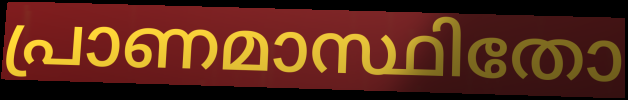
പ്രാണമാസ്ഥിതോ